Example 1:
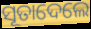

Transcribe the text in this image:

ସୂତାଦେଲେ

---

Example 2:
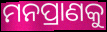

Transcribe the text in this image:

ମନପ୍ରାଣକୁ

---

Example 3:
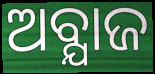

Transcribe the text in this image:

ଅବ୍ଯାଜ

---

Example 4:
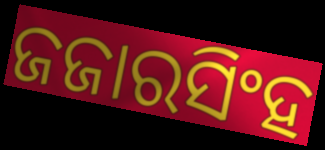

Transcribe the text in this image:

ଜଜାରସିଂହ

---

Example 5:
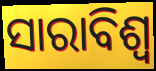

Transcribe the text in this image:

ସାରାବିଶ୍ବ